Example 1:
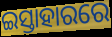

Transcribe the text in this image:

ଇସ୍ତାହାରରେ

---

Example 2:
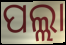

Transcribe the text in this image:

ପଲ୍ଲା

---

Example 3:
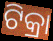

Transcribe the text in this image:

ଟିକ୍ରା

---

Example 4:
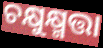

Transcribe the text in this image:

ଚକ୍ଷୁକ୍ଷ୍ମତ୍ତା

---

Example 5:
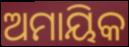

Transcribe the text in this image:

ଅମାୟିକ